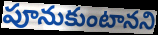
పూనుకుంటానని